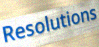
Resolutions